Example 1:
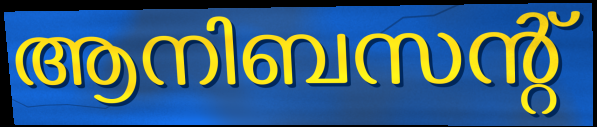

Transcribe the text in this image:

ആനിബസന്റ്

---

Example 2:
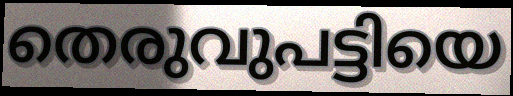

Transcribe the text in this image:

തെരുവുപട്ടിയെ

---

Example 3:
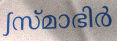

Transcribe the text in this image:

ഽസ്മാഭിർ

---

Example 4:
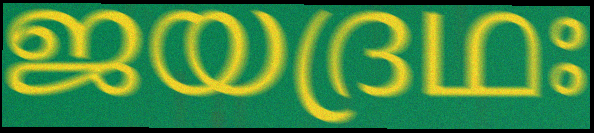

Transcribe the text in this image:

ജയദ്രഥഃ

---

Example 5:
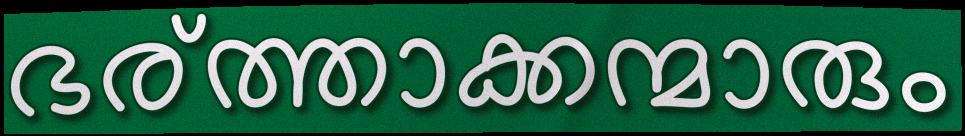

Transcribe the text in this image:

ഭര്ത്താക്കന്മാരും